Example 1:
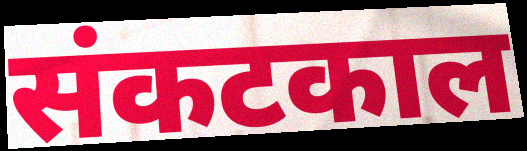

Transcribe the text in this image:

संकटकाल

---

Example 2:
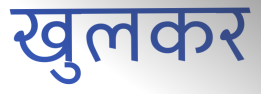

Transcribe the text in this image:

खुलकर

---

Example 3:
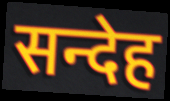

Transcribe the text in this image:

सन्देह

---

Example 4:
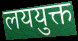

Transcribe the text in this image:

लययुक्त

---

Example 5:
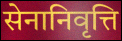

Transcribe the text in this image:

सेनानिवृत्ति